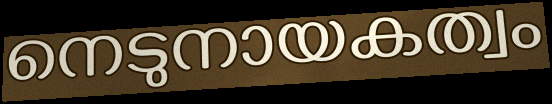
നെടുനായകത്വം